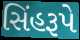
સિંહરૂપે